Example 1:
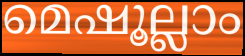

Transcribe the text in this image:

മെഷൂല്ലാം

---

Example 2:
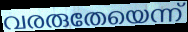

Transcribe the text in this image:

വരരുതേയെന്ന്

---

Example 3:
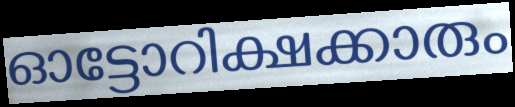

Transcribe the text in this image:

ഓട്ടോറിക്ഷക്കാരും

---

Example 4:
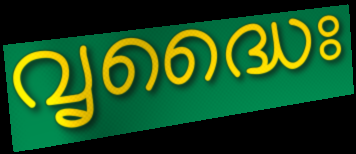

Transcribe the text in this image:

വൃദ്ധൈഃ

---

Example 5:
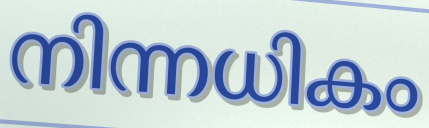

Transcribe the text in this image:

നിന്നധികം